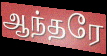
ஆந்தரே